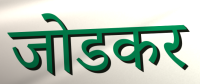
जोडकर